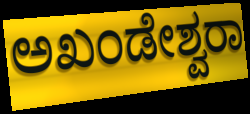
ಅಖಂಡೇಶ್ವರಾ